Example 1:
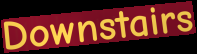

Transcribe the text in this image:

Downstairs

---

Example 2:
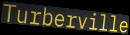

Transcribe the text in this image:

Turberville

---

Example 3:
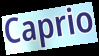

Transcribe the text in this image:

Caprio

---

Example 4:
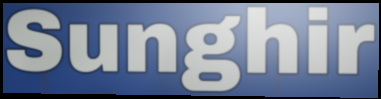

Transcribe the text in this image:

Sunghir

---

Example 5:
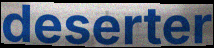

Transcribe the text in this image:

deserter